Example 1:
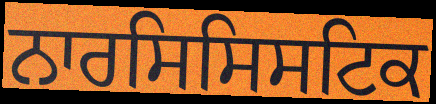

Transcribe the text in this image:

ਨਾਰਸਿਸਿਸਟਿਕ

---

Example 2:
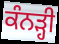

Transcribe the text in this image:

ਕੰਨੜ੍ਹੀ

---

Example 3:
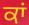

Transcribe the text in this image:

ਕਾਂ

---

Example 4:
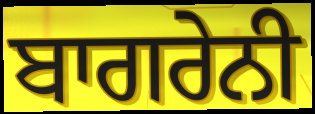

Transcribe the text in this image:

ਬਾਗਰੇਨੀ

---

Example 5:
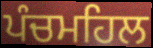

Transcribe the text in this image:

ਪੰਚਮਹਿਲ